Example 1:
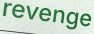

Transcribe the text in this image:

revenge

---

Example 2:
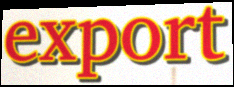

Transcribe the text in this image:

export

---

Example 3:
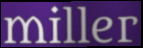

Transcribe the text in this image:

miller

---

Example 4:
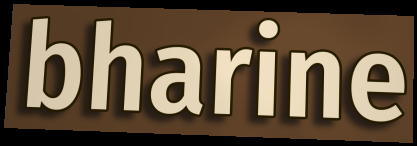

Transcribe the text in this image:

bharine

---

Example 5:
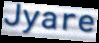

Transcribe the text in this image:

Jyare